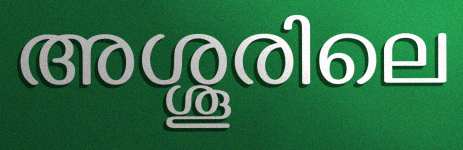
അശ്ശൂരിലെ